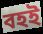
বহই